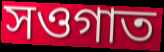
সওগাত